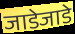
जाडेजाडे